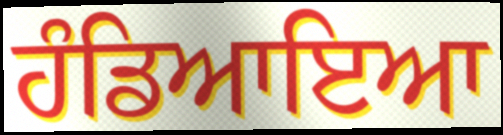
ਹੰਡਿਆਇਆ